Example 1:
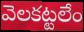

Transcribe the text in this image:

వెలకట్టలేం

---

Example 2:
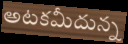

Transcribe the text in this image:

అటకమీదున్న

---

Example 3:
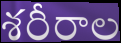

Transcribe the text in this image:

శరీరాల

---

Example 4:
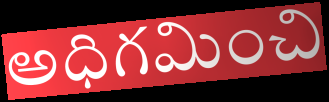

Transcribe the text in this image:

అధిగమించి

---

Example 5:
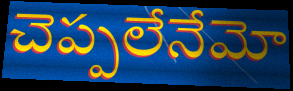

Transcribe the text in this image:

చెప్పలేనేమో